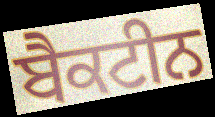
ਬੈਕਟੀਨ